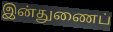
இன்துணைப்